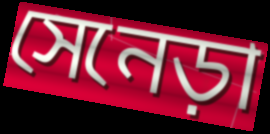
সেনেড়া